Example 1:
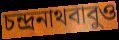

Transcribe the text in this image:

চন্দ্রনাথবাবুও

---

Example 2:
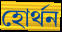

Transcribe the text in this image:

হোর্থন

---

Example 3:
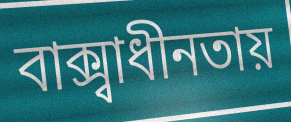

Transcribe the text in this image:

বাক্স্বাধীনতায়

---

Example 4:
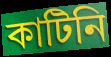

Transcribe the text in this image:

কাটিনি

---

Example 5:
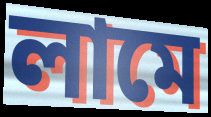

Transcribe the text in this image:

লামে